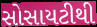
સોસાયટીથી